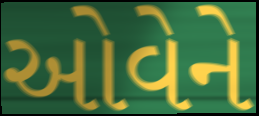
ઓવેને